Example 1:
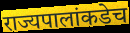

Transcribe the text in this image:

राज्यपालांकडेच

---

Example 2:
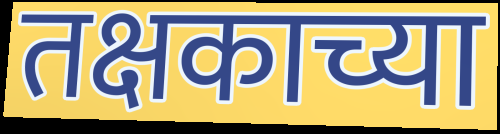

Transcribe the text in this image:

तक्षकाच्या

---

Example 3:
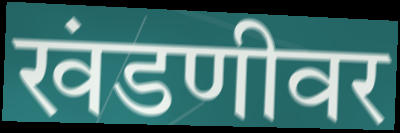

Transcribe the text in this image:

खंडणीवर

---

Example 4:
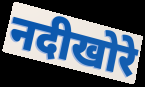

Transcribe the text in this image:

नदीखोरे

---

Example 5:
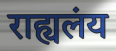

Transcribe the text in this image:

राह्यलंय